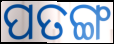
ପତଙ୍ଗ